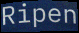
Ripen